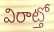
విరాట్తో